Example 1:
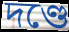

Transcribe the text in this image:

দণ্ডে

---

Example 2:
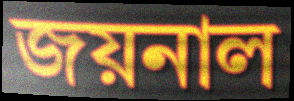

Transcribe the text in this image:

জয়নাল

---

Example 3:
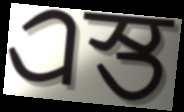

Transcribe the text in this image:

এস্ত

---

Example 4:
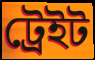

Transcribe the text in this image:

ট্রেইট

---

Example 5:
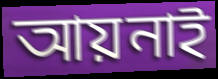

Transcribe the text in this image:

আয়নাই